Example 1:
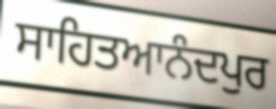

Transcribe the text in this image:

ਸਾਹਿਤਆਨੰਦਪੁਰ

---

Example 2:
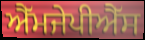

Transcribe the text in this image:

ਐੱਮਜੇਪੀਐੱਸ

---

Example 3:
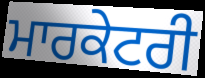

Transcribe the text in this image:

ਮਾਰਕੇਟਰੀ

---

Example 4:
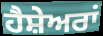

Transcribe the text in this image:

ਹੈਸ਼ੇਅਰਾਂ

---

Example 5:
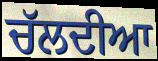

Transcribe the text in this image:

ਚੱਲਦੀਆ